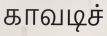
காவடிச்